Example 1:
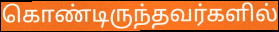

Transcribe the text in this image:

கொண்டிருந்தவர்களில்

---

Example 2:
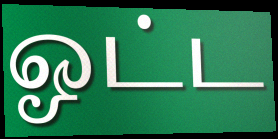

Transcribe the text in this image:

ஓட்ட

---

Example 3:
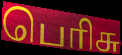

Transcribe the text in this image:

பெரிசு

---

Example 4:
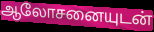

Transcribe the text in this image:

ஆலோசனையுடன்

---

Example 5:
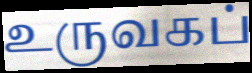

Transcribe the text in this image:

உருவகப்